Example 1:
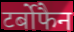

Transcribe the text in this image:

टर्बोफैन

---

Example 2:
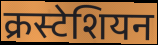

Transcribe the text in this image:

क्रस्टेशियन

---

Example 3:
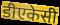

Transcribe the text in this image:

डीएकेसी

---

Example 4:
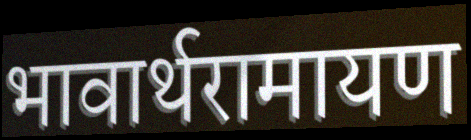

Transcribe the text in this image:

भावार्थरामायण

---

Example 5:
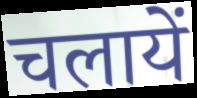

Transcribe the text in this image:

चलायें